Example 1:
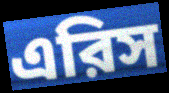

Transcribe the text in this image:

এরিস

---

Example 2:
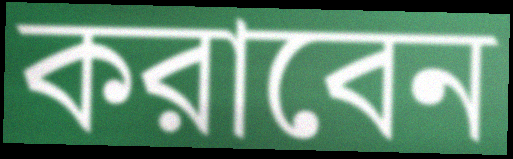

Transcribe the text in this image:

করাবেন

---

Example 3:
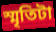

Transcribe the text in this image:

স্মৃতিটা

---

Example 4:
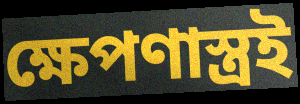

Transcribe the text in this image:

ক্ষেপণাস্ত্রই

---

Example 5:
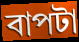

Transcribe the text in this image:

বাপটা